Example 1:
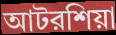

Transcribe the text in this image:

আটরশিয়া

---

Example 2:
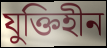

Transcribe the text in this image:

যুক্তিহীন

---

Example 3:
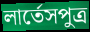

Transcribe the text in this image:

লার্তেসপুত্র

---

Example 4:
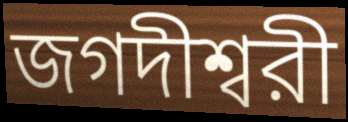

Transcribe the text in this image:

জগদীশ্বরী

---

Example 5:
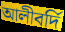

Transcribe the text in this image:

আলীবর্দি